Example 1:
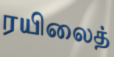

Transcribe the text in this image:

ரயிலைத்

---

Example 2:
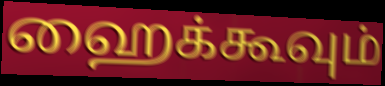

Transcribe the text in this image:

ஹைக்கூவும்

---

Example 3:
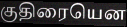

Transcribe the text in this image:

குதிரையென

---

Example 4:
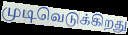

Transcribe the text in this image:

முடிவெடுக்கிறது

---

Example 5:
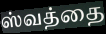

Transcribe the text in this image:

ஸ்வத்தை